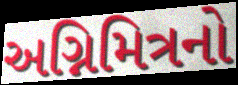
અગ્નિમિત્રનો